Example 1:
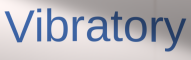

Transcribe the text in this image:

Vibratory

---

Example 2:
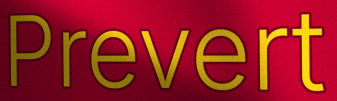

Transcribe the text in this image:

Prevert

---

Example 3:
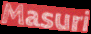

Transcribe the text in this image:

Masuri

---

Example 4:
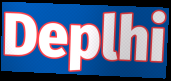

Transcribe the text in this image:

Deplhi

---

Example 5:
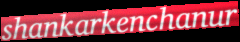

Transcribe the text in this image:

shankarkenchanur